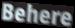
Behere